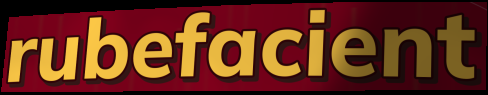
rubefacient